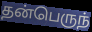
தன்பெருந்